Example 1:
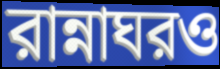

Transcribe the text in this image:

রান্নাঘরও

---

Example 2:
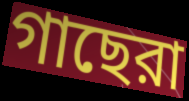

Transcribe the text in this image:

গাছেরা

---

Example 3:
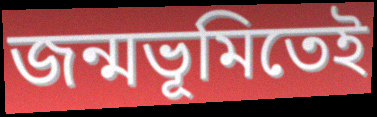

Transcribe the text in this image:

জন্মভূমিতেই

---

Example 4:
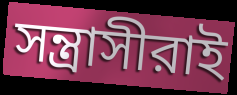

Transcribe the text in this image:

সন্ত্রাসীরাই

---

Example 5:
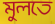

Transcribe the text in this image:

মুলতে